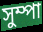
সুম্পা